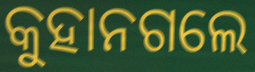
କୁହାନଗଲେ